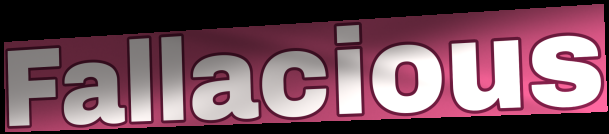
Fallacious